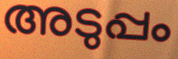
അടുപ്പം